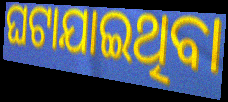
ଘଟାଯାଇଥିବା